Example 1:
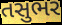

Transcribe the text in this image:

તસુભર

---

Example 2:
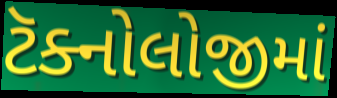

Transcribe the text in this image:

ટૅક્નોલોજીમાં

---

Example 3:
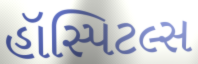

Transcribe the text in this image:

હૉસ્પિટલ્સ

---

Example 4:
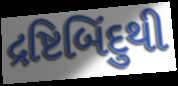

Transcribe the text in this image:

દ્રષ્ટિબિંદુથી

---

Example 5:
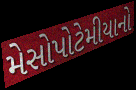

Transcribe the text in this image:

મેસોપોટેમીયાનો